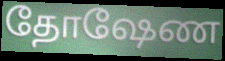
தோஷேண